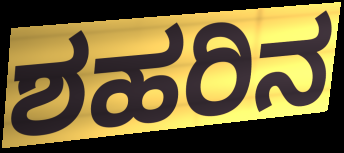
ಶಹರಿನ